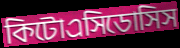
কিটোএসিডোসিস